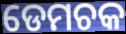
ଡେମଚକ